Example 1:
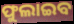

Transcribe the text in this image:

ଫୁଲାଇବ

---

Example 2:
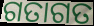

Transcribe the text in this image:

ଗତାଗତ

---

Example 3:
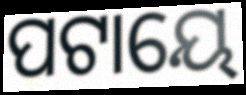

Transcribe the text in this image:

ପଟାୟେ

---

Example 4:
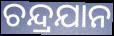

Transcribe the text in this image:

ଚନ୍ଦ୍ରଯାନ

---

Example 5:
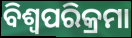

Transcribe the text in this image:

ବିଶ୍ୱପରିକ୍ରମା